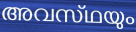
അവസ്‌ഥയും